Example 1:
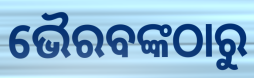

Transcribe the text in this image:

ଭୈରବଙ୍କଠାରୁ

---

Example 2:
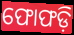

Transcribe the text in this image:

ଫୋଫଡ଼ି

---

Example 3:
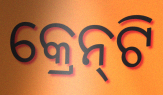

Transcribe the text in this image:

କ୍ରେନ୍‍ଟି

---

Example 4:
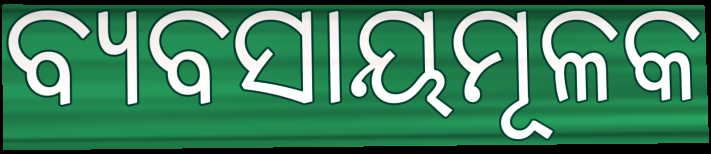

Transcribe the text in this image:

ବ୍ୟବସାୟମୂଳକ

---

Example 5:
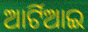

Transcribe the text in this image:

ଆର୍ଟିଆଇ